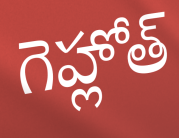
గెహ్లోత్